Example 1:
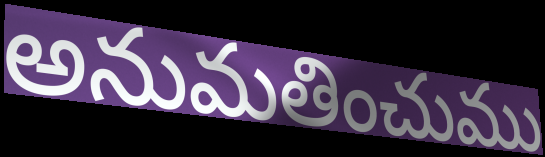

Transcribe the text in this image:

అనుమతించుము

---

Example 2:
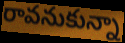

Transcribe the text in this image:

రావనుకున్నా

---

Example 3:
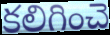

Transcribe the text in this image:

కలిగించె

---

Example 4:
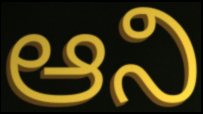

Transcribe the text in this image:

ఆని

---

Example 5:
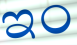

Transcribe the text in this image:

ఇం